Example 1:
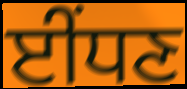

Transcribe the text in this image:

ਈਂਧਣ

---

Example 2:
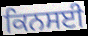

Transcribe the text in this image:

ਕਿਨਸਈ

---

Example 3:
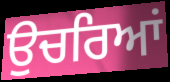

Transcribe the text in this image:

ਉਚਰਿਆਂ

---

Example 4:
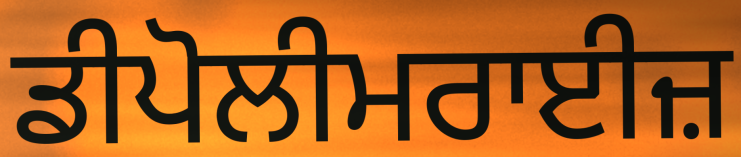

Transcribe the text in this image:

ਡੀਪੋਲੀਮਰਾਈਜ਼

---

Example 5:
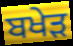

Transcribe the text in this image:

ਬਖੇੜ